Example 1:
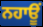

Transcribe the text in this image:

ਨਹਾਊਂ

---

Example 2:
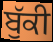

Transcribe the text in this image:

ਬੁੱਕੀ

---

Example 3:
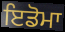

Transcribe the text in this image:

ਇਡੋਮਾ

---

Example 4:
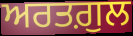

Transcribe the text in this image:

ਅਰਤਗ਼ੁਲ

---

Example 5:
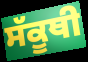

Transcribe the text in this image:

ਸੱਕੂਥੀ